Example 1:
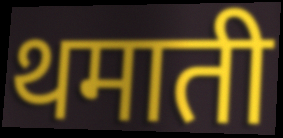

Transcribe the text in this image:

थमाती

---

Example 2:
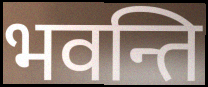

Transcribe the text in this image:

भवन्ति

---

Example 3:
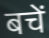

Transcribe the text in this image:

बचें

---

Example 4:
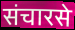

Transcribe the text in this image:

संचारसे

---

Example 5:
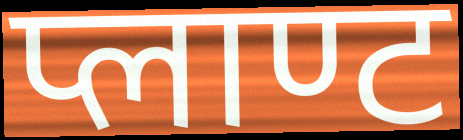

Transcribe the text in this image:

प्लाण्ट